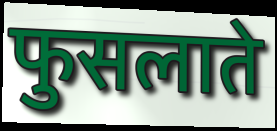
फुसलाते